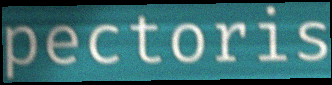
pectoris